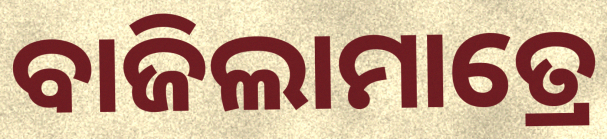
ବାଜିଲାମାତ୍ରେ